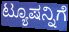
ಟ್ಯೂಷನ್ನಿಗೆ